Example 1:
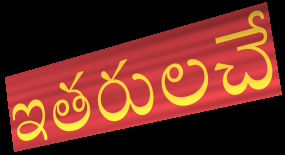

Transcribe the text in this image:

ఇతరులచే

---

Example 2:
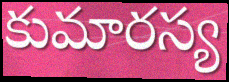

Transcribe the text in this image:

కుమారస్య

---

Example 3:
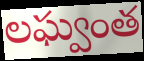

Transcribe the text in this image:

లఘ్వంత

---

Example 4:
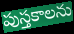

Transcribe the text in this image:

పుస్తకాలను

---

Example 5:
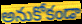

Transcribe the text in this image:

అనుకోకండా